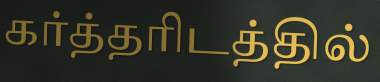
கர்த்தரிடத்தில்